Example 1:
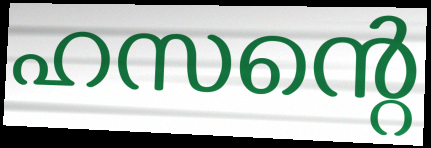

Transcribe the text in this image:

ഹസന്റെ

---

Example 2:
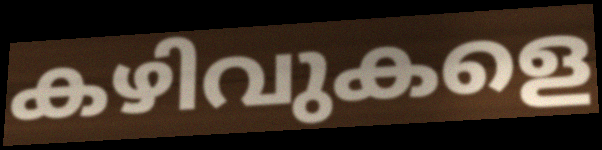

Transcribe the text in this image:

കഴിവുകളെ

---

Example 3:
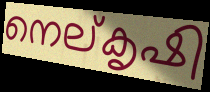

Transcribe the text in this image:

നെല്കൃഷി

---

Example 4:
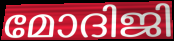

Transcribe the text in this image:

മോദിജി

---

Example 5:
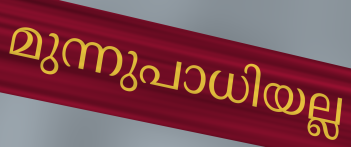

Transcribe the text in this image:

മുന്നുപാധിയല്ല